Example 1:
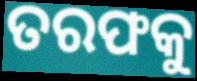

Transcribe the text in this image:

ତରଫକୁ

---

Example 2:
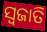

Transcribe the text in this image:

ସ୍ବଜାତି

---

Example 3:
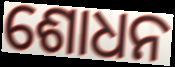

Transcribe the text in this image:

ଶୋଧନ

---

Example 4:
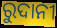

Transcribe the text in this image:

ରୁଦାନୀ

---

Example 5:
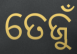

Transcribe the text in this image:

ତେଜୁଁ